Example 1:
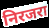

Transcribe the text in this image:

निरजरा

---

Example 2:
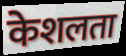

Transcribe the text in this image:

केशलता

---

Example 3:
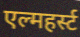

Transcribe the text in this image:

एल्महर्स्ट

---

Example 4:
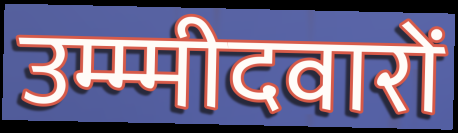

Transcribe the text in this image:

उम्म्मीदवारों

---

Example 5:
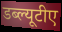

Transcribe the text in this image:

डब्ल्यूटीए